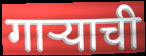
गाऱ्याची